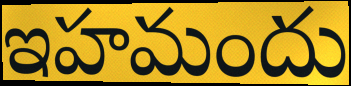
ఇహమందు